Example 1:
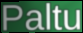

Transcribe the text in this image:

Paltu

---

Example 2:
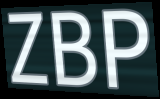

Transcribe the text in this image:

ZBP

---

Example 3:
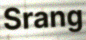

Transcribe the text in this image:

Srang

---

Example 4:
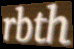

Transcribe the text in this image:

rbth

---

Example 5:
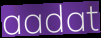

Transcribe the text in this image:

aadat